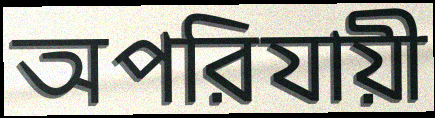
অপরিযায়ী